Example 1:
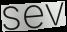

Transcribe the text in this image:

sev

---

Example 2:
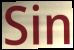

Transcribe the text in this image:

Sin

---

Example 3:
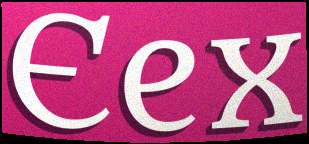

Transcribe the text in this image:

Eex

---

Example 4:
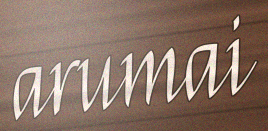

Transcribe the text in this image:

arumai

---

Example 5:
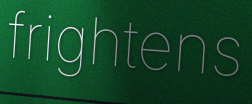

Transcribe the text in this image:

frightens